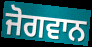
ਜੋਗਵਾਨ